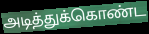
அடித்துக்கொண்ட